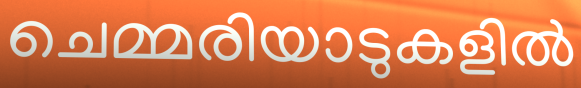
ചെമ്മരിയാടുകളിൽ